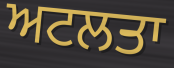
ਅਟਲਤਾ